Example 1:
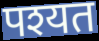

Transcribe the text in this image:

पश्यत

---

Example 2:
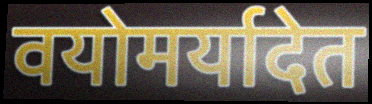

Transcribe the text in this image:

वयोमर्यादेत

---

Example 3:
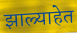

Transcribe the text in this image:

झाल्याहेत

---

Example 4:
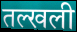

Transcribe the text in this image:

तल्खली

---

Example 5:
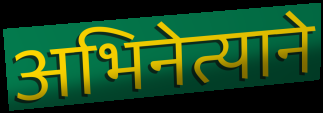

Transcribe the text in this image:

अभिनेत्याने